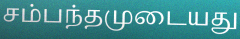
சம்பந்தமுடையது